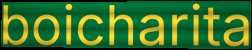
boicharita